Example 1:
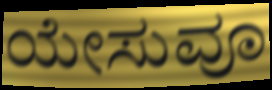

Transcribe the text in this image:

ಯೇಸುವೂ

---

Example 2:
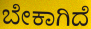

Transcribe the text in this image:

ಬೇಕಾಗಿದೆ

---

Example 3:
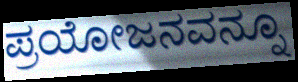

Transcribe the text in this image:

ಪ್ರಯೋಜನವನ್ನೂ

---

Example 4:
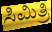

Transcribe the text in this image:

ಸಿಮಿತ್ರಿ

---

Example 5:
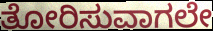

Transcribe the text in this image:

ತೋರಿಸುವಾಗಲೇ